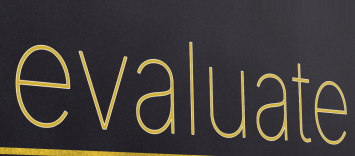
evaluate